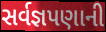
સર્વજ્ઞપણાની